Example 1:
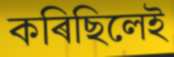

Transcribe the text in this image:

কৰিছিলেই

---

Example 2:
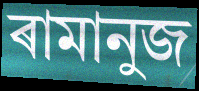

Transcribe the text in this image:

ৰামানুজ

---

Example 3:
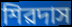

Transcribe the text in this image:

শিৱদাস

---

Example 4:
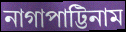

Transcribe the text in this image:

নাগাপাট্টিনাম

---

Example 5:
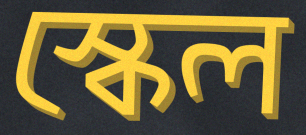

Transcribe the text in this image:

স্কেল